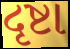
દૃષ્ટા